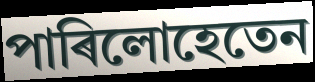
পাৰিলোহেতেন